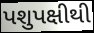
પશુપક્ષીથી